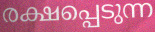
രക്ഷപ്പെടുന്ന